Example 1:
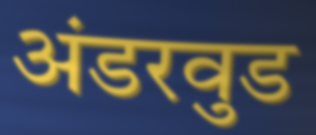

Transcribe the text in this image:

अंडरवुड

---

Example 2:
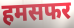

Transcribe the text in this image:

हमसफर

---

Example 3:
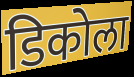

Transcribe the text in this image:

डिकोला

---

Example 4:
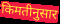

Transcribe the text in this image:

किमतीनुसार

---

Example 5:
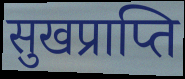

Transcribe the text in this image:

सुखप्राप्ति